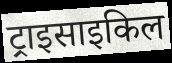
ट्राइसाइकिल